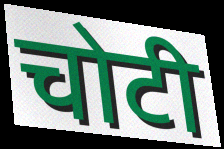
चोटी